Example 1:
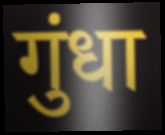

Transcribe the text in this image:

गुंधा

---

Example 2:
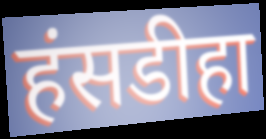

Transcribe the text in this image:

हंसडीहा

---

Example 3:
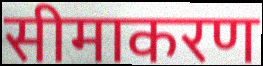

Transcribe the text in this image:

सीमाकरण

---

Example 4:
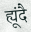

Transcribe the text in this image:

ह्यूंदै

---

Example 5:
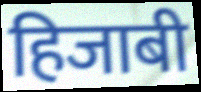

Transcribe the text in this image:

हिजाबी